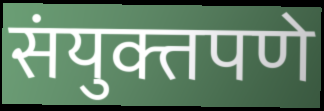
संयुक्तपणे